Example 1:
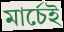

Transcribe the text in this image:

মার্চেই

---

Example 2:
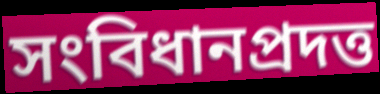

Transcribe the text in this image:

সংবিধানপ্রদত্ত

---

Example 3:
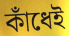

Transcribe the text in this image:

কাঁধেই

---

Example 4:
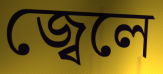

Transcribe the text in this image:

জ্বেলে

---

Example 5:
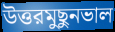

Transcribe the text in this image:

উত্তরমুছুনভাল